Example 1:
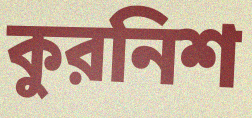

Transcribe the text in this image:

কুরনিশ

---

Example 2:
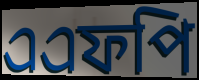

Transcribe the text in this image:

এএফপি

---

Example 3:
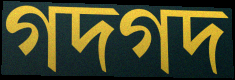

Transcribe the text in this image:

গদগদ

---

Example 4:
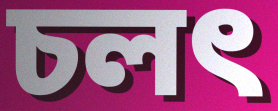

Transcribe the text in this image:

চলৎ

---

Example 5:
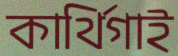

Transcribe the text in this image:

কার্থিগাই